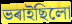
ভৰাইছিলো